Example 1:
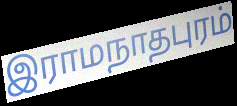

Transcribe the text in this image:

இராமநாதபுரம்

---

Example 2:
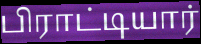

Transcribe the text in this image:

பிராட்டியார்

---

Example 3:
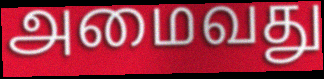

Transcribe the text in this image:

அமைவது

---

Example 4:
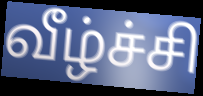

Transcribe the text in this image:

வீழ்ச்சி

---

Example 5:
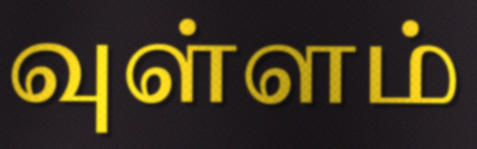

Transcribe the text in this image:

வுள்ளம்